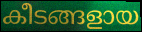
കീടങ്ങളായ